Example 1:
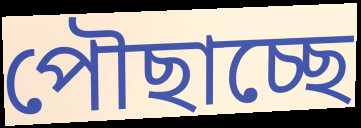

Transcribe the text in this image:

পৌছাচ্ছে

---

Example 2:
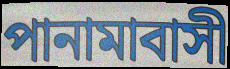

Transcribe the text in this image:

পানামাবাসী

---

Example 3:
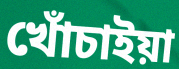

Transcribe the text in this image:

খোঁচাইয়া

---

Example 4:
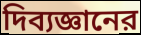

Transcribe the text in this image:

দিব্যজ্ঞানের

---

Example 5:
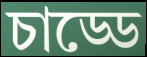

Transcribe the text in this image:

চাড্ডে